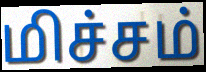
மிச்சம்